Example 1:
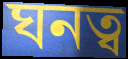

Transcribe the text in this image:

ঘনত্ব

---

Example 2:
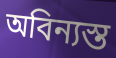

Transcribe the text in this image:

অবিন্যস্ত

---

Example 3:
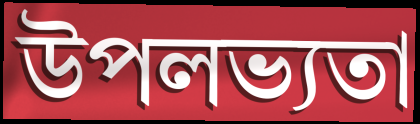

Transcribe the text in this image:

উপলভ্যতা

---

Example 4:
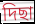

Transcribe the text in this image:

দিছা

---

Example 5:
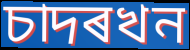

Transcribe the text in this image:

চাদৰখন